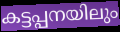
കട്ടപ്പനയിലും